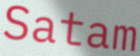
Satam